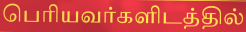
பெரியவர்களிடத்தில்